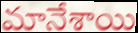
మానేశాయి